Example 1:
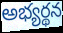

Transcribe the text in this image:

అభ్యర్థన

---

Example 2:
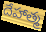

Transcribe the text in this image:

దేహాత్మ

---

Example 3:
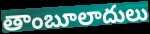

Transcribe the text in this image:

తాంబూలాదులు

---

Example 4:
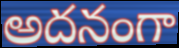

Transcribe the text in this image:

అదనంగా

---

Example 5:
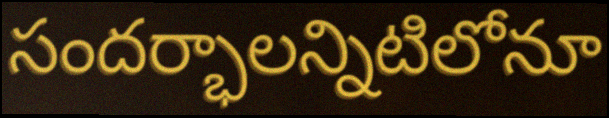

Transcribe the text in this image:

సందర్భాలన్నిటిలోనూ